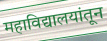
महाविद्यालयांतून